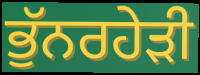
ਭੁੱਨਰਹੇੜੀ